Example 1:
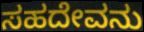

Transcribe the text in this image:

ಸಹದೇವನು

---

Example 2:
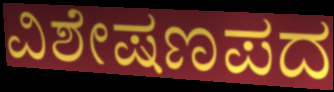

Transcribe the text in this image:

ವಿಶೇಷಣಪದ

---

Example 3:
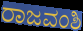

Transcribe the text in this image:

ರಾಜವಂಶಿ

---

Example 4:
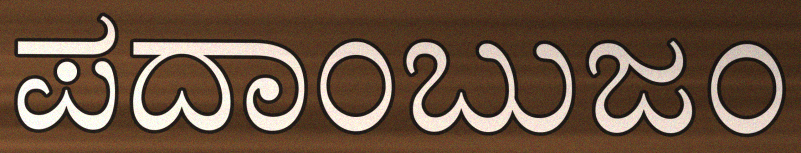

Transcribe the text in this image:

ಪದಾಂಬುಜಂ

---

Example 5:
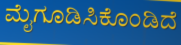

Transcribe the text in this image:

ಮೈಗೂಡಿಸಿಕೊಂಡಿದೆ